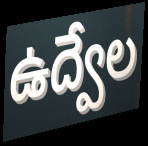
ఉద్వేల